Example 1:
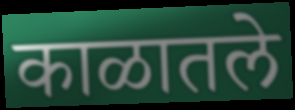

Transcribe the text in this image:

काळातले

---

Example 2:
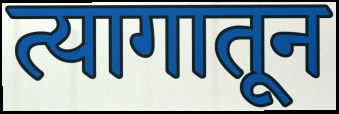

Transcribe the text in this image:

त्यागातून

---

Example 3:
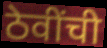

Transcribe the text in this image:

ठेवींची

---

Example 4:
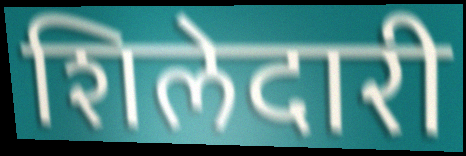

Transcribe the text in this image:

शिलेदारी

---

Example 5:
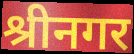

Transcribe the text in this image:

श्रीनगर